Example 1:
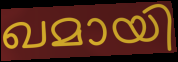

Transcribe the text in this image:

ഖമായി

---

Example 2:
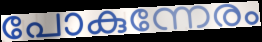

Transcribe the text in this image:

പോകുന്നേരം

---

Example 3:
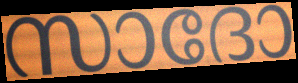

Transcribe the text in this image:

സാദോ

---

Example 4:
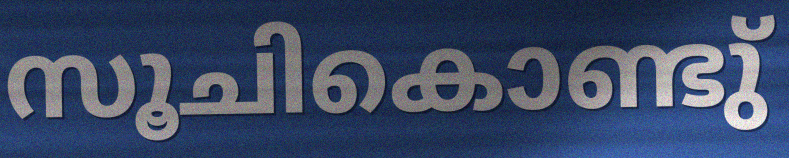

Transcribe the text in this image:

സൂചികൊണ്ടു്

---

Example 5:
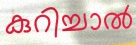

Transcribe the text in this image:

കുറിച്ചാൽ